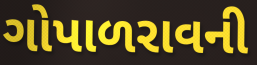
ગોપાળરાવની